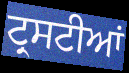
ਟ੍ਰਸਟੀਆਂ